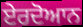
ਏਰਦੋਆਨ